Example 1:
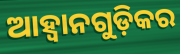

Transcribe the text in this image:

ଆହ୍ଵାନଗୁଡ଼ିକର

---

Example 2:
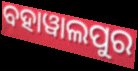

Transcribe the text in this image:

ବହାୱାଲପୁର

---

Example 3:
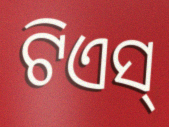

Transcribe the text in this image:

ଟିଏସ୍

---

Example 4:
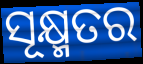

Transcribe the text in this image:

ସୂକ୍ଷ୍ମତର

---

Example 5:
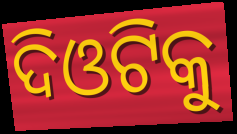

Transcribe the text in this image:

ଦିଓଟିକୁ